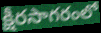
క్షీరసాగరంలో